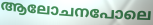
ആലോചനപോലെ